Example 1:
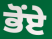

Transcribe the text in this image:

ਭੋਂਏ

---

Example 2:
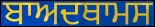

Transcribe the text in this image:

ਬਾਅਦਥਾਮਸ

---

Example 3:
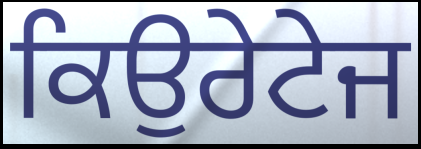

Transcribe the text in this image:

ਕਿਉਰੇਟੇਜ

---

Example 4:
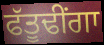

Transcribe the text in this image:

ਫੱਤੂਢੀਂਗਾ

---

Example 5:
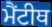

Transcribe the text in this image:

ਮੈਂਟੀਥ